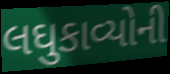
લઘુકાવ્યોની